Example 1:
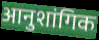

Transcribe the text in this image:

आनुशांगिक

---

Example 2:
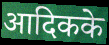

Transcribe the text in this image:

आदिकके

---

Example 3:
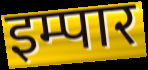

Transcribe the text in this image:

इम्पार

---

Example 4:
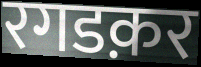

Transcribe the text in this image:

रगडक़र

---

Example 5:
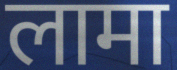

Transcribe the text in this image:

लामा